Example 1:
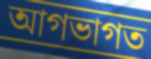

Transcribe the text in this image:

আগভাগত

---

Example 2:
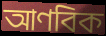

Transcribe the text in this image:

আণবিক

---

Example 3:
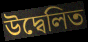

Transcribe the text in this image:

উদ্বেলিত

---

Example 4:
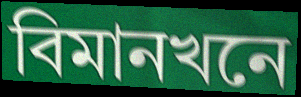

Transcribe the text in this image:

বিমানখনে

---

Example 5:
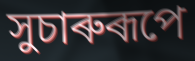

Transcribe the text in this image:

সুচাৰুৰূপে